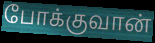
போக்குவான்